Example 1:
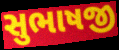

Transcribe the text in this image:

સુભાષજી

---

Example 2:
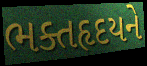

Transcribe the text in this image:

ભક્તહૃદયને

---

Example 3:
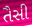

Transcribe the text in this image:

તૈસી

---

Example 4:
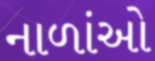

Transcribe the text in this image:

નાળાંઓ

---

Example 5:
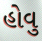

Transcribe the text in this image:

હોવુ